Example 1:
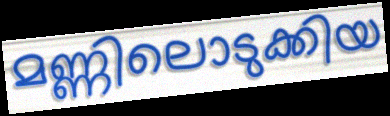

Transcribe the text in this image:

മണ്ണിലൊടുക്കിയ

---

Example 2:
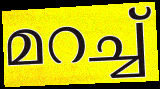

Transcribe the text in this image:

മറച്ച്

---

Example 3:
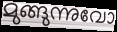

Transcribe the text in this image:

മുങ്ങുന്നുവോ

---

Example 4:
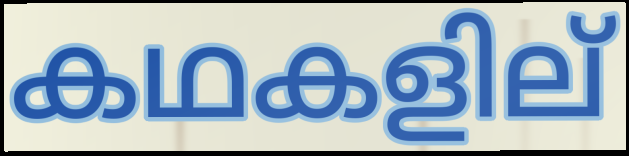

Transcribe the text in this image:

കഥകളില്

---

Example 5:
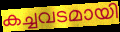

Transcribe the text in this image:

കച്ചവടമായി